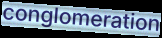
conglomeration